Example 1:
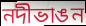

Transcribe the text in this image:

নদীভাঙন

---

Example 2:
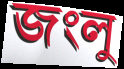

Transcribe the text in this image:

জংলু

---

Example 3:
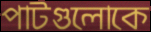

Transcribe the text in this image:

পাটগুলোকে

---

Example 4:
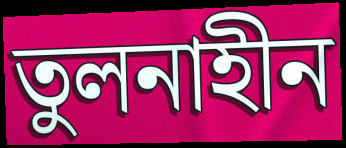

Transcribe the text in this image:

তুলনাহীন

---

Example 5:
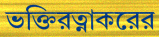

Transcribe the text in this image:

ভক্তিরত্নাকরের